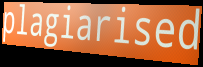
plagiarised